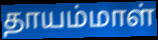
தாயம்மாள்